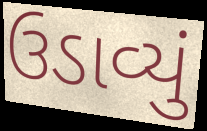
ઉડાવ્યું